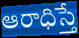
ఆరాధిస్తే